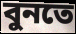
বুনতে